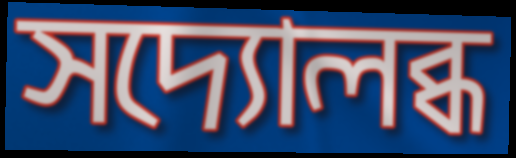
সদ্যোলব্ধ